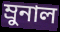
ম্রুনাল